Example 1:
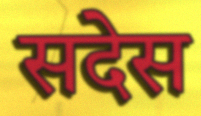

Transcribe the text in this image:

सदेस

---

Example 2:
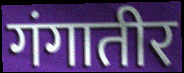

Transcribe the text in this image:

गंगातीर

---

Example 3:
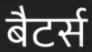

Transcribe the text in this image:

बैटर्स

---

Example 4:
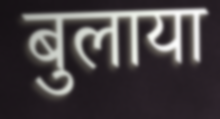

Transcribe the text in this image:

बुलाया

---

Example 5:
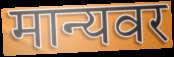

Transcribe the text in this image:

मान्यवर